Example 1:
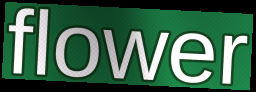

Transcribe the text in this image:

flower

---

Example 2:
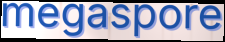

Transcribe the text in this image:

megaspore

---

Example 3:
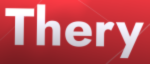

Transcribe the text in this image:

Thery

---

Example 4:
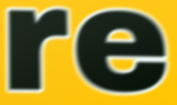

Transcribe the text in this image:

re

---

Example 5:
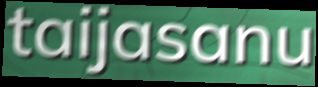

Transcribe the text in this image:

taijasanu